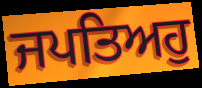
ਜਪਤਿਅਹੁ